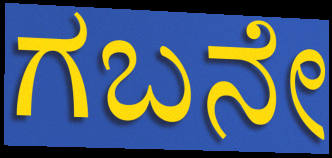
ಗಬನೇ